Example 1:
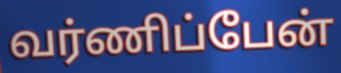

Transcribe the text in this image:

வர்ணிப்பேன்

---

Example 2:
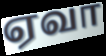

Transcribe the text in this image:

ஏவா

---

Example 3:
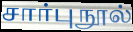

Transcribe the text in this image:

சார்புநூல்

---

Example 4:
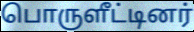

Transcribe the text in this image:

பொருளீட்டினர்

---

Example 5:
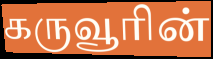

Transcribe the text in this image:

கருவூரின்